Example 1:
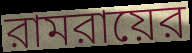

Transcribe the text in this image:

রামরায়ের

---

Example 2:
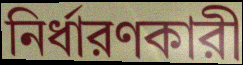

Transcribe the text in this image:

নির্ধারণকারী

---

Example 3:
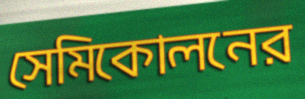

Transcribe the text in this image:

সেমিকোলনের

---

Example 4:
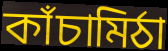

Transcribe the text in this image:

কাঁচামিঠা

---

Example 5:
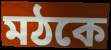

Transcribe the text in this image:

মঠকে